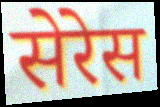
सेरेस